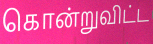
கொன்றுவிட்ட